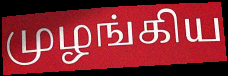
முழங்கிய